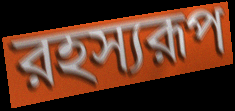
রহস্যরূপ